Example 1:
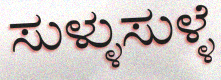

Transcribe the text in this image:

ಸುಳ್ಳುಸುಳ್ಳೆ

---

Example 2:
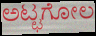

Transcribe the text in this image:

ಅಟ್ಟಗೋಲ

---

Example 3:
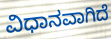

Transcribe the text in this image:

ವಿಧಾನವಾಗಿದೆ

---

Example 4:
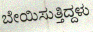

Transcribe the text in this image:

ಬೇಯಿಸುತ್ತಿದ್ದಳು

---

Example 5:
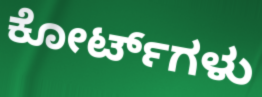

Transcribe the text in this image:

ಕೋರ್ಟ್‌ಗಳು